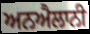
ਅਨਐਲਾਨੀ